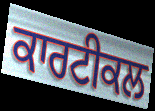
ਕਾਰਟੀਕਲ